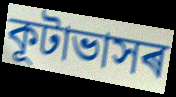
কূটাভাসৰ